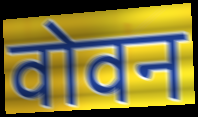
वोवन